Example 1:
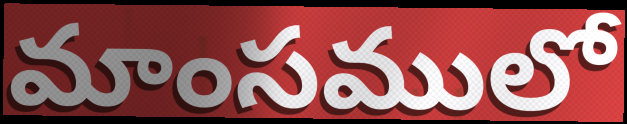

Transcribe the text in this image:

మాంసములో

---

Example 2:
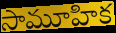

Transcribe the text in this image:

సామూహిక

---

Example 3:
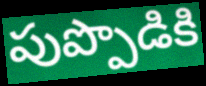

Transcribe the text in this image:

పుప్పొడికి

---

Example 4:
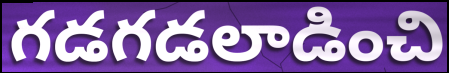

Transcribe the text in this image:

గడగడలాడించి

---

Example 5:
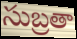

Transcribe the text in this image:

సుబ్రతా